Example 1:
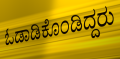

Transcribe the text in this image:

ಓಡಾಡಿಕೊಂಡಿದ್ದರು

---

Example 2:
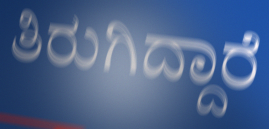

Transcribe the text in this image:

ತಿರುಗಿದ್ದಾರೆ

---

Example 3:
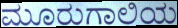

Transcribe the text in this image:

ಮೂರುಗಾಲಿಯ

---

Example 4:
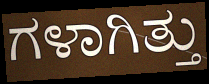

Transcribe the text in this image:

ಗಳಾಗಿತ್ತು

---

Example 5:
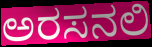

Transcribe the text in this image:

ಅರಸನಲಿ